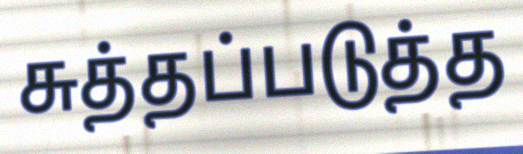
சுத்தப்படுத்த